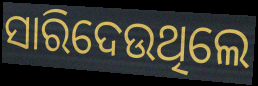
ସାରିଦେଉଥିଲେ